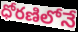
ధోరణిలోనే